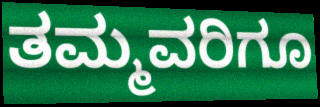
ತಮ್ಮವರಿಗೂ